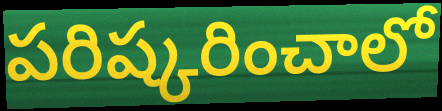
పరిష్కరించాలో